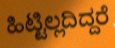
ಹಿಟ್ಟಿಲ್ಲದಿದ್ದರೆ